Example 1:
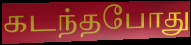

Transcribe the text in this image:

கடந்தபோது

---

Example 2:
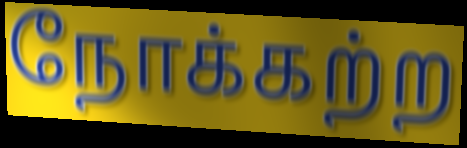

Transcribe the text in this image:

நோக்கற்ற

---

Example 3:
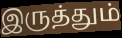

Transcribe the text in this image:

இருத்தும்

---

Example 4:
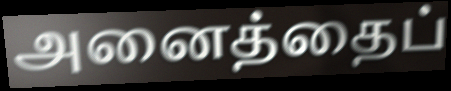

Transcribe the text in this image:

அனைத்தைப்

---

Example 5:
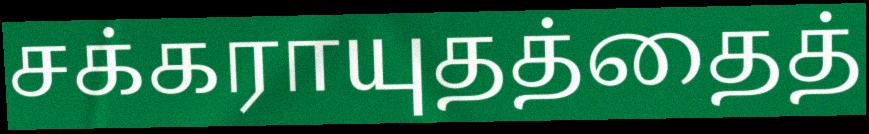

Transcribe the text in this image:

சக்கராயுதத்தைத்